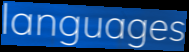
languages